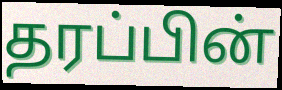
தரப்பின்